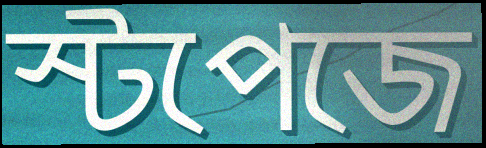
স্টপেজে